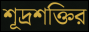
শূদ্রশক্তির